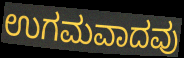
ಉಗಮವಾದವು